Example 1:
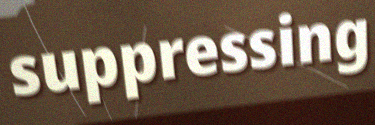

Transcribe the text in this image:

suppressing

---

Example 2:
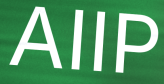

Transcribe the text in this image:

AIIP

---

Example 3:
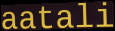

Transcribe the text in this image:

aatali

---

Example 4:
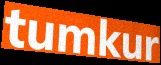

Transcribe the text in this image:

tumkur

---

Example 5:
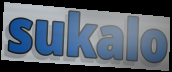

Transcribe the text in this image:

sukalo